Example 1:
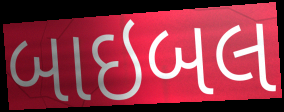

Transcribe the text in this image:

બાઇબલ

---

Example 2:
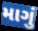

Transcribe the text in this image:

માગું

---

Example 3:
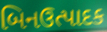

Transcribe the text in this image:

બિનઉત્પાદક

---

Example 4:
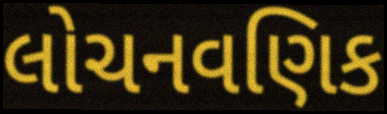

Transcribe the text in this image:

લોચનવણિક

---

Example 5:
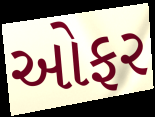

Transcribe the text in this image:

ઓફર